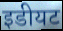
इडीयट